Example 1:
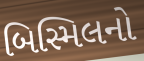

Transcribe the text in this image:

બિસ્મિલનો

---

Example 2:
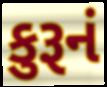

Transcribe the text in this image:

કુરૂનં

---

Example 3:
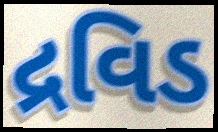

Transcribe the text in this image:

દ્રવિડ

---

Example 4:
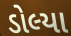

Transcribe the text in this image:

ડોલ્યા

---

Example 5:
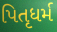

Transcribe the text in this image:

પિતૃધર્મ